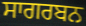
ਸਾਗਰਬਨ